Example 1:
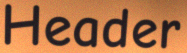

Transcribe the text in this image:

Header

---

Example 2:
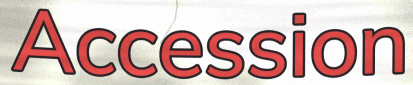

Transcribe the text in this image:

Accession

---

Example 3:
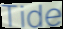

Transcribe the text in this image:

Tide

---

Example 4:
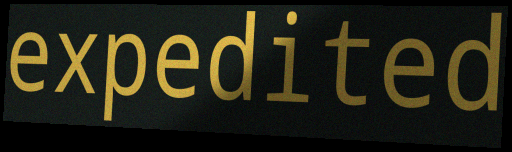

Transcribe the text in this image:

expedited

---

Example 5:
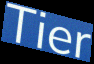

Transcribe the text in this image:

Tier